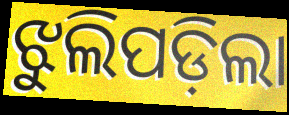
ଝୁଲିପଡ଼ିଲା